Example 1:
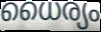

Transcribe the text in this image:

ധൈര്യം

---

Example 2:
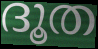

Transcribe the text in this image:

ദൂത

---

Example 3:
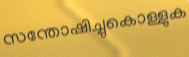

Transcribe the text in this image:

സന്തോഷിച്ചുകൊള്ളുക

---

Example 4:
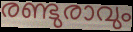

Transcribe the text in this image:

രണ്ടുരാവും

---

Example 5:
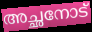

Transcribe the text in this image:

അച്ഛനോട്